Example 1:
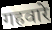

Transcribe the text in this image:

गहवारे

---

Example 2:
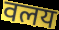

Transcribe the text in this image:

वलय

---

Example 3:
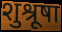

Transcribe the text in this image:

शुश्रूषा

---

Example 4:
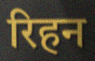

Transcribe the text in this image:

रिहन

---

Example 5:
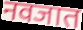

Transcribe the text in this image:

नवजात